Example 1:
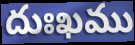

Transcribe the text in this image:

దుఃఖము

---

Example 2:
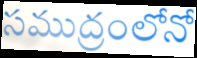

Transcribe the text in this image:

సముద్రంలోనో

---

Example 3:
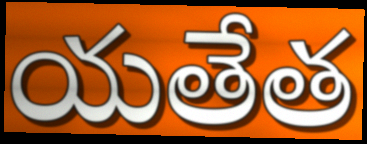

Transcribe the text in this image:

యతేత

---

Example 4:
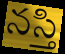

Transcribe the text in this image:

నస్తి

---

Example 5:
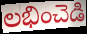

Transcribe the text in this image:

లభించెడి